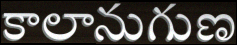
కాలానుగుణ